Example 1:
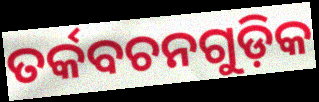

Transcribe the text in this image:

ତର୍କବଚନଗୁଡ଼ିକ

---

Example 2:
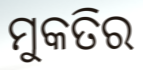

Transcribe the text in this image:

ମୁକତିର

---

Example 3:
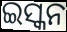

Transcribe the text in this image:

ଇସ୍କନ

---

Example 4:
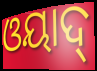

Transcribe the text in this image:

ଓୟାଦ୍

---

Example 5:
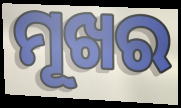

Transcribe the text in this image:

ମୂଖର